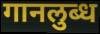
गानलुब्ध